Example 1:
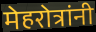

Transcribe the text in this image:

मेहरोत्रांनी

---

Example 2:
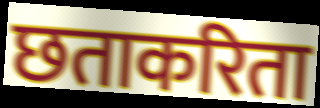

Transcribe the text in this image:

छताकरिता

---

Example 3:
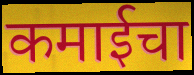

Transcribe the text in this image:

कमाईचा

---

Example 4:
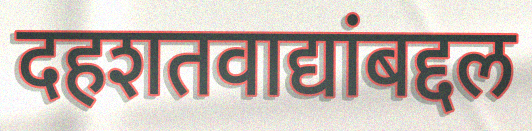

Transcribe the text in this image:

दहशतवाद्यांबद्दल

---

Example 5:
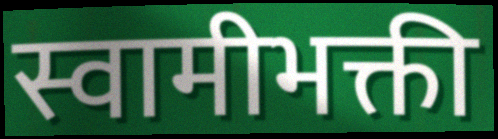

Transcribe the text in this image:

स्वामीभक्ती